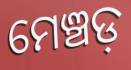
ମେଞ୍ଚଡ଼